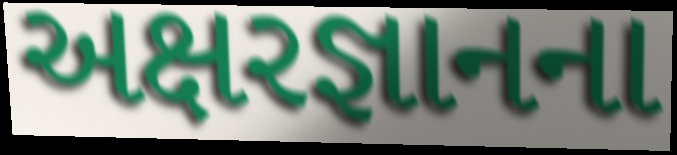
અક્ષરજ્ઞાનના